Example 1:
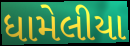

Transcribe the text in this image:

ધામેલીયા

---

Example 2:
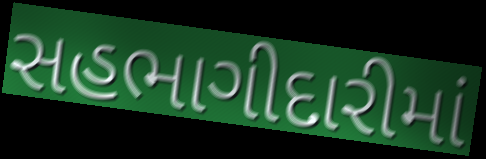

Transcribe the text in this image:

સહભાગીદારીમાં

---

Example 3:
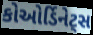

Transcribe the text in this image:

કોઓર્ડિનેટ્સ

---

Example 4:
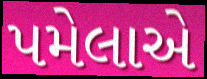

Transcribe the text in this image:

પમેલાએ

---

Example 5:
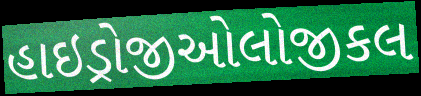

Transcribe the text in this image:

હાઇડ્રોજીઓલોજીકલ